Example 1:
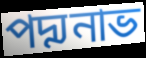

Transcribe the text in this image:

পদ্মনাভ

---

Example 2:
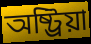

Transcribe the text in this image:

অষ্ট্রিয়া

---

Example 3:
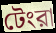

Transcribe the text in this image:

টেংরা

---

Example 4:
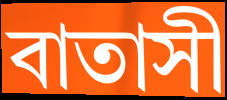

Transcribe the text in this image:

বাতাসী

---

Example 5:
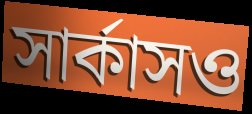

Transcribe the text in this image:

সার্কাসও